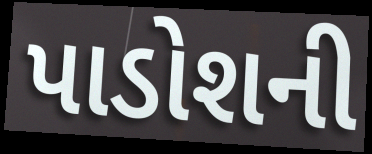
પાડોશની